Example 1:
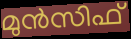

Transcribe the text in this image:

മുൻസിഫ്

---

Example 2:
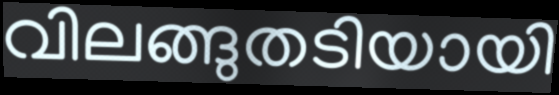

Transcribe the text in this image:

വിലങ്ങുതടിയായി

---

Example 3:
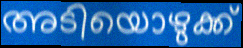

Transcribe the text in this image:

അടിയൊഴുക്ക്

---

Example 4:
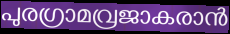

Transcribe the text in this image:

പുരഗ്രാമവ്രജാകരാൻ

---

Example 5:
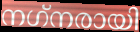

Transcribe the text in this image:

നഗ്‌നരായി